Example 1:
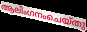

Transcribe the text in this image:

ആലിംഗനംചെയ്തു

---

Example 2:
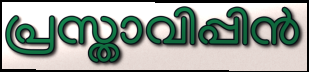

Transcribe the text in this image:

പ്രസ്താവിപ്പിൻ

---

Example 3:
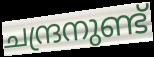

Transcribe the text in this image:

ചന്ദ്രനുണ്ട്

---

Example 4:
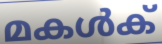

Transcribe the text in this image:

മകൾക്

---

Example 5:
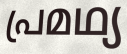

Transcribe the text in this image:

പ്രമഥ്യ